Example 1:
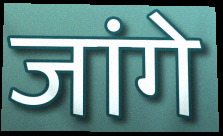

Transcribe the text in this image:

जांगे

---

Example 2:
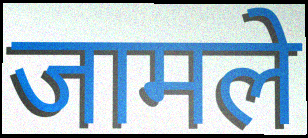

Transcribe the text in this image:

जामले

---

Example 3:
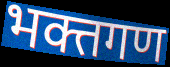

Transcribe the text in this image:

भक्तगण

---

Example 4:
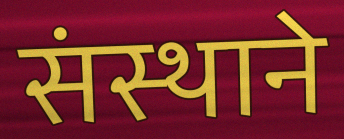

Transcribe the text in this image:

संस्थाने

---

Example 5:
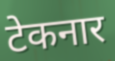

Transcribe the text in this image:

टेकनार